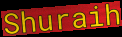
Shuraih